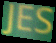
JES